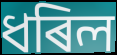
ধৰিল